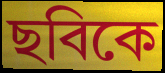
ছবিকে